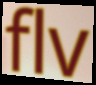
flv